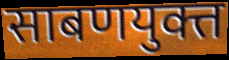
साबणयुक्त